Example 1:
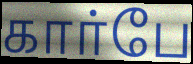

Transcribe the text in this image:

கார்பே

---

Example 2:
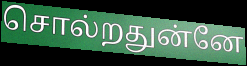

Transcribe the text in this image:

சொல்றதுன்னே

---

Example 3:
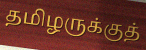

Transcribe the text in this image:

தமிழருக்குத்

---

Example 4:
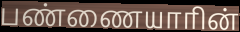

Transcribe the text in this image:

பண்ணையாரின்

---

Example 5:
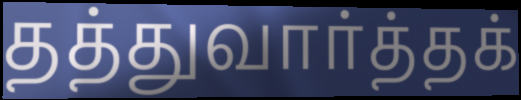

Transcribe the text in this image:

தத்துவார்த்தக்